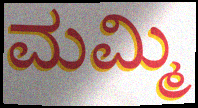
ಮಮ್ಮಿ